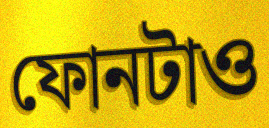
ফোনটাও